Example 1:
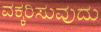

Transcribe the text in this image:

ವಕ್ಕರಿಸುವುದು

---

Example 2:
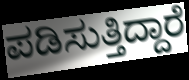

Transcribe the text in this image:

ಪಡಿಸುತ್ತಿದ್ದಾರೆ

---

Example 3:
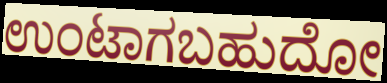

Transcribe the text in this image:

ಉಂಟಾಗಬಹುದೋ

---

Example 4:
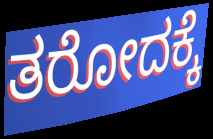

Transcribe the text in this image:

ತರೋದಕ್ಕೆ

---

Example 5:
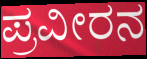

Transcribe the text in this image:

ಪ್ರವೀರನ